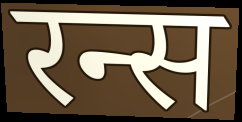
रन्स